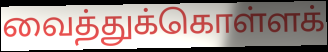
வைத்துக்கொள்ளக்